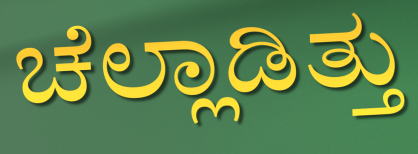
ಚೆಲ್ಲಾಡಿತ್ತು